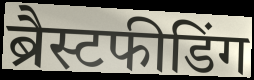
ब्रैस्टफीडिंग